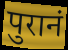
पुरानं